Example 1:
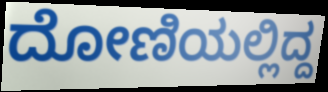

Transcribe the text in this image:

ದೋಣಿಯಲ್ಲಿದ್ದ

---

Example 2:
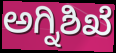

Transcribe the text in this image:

ಅಗ್ನಿಶಿಖೆ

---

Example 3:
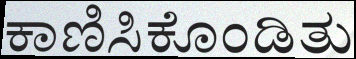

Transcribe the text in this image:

ಕಾಣಿಸಿಕೊಂಡಿತು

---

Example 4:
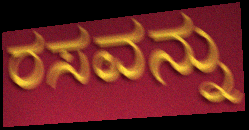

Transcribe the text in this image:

ರಸವನ್ನು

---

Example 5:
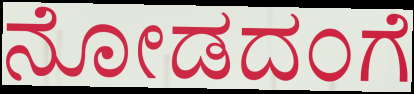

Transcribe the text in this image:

ನೋಡದಂಗೆ